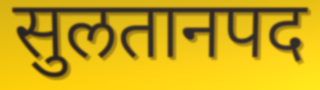
सुलतानपद